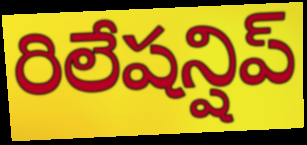
రిలేషన్షిప్